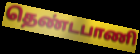
தெண்டபாணி